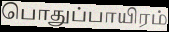
பொதுப்பாயிரம்